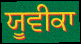
ਯੂਵੀਕਾ